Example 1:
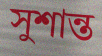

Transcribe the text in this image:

সুশান্ত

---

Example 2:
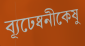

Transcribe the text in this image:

ব্যূঢেষ্বনীকেষু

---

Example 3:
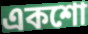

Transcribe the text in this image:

একশো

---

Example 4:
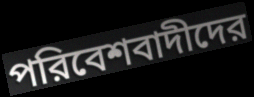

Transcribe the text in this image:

পরিবেশবাদীদের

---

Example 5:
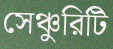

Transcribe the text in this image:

সেঞ্চুরিটি